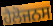
ਹੈਲੋਜਨਸ